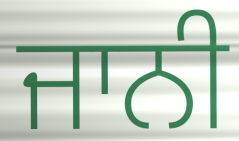
ਜਾਨੀ